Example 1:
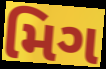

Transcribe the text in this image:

મિગ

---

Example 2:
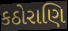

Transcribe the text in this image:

કઠોરાણિ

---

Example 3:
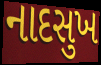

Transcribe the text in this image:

નાદસુખ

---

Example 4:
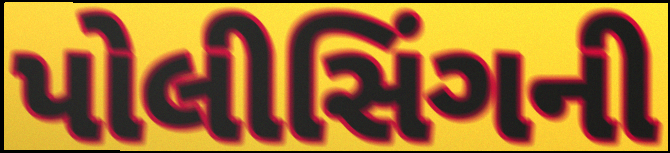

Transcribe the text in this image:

પોલીસિંગની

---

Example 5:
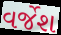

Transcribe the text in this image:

વર્જેશ